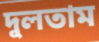
দুলতাম